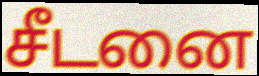
சீடனை